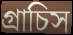
গ্রাচিস